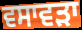
ਵਸਾਵੜਾ